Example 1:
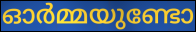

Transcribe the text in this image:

ഓർമ്മയുണ്ടോ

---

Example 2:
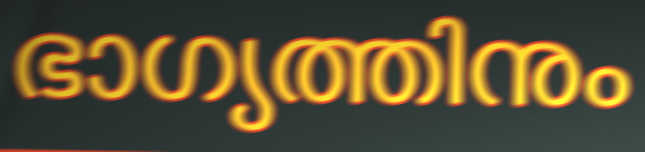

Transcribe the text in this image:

ഭാഗ്യത്തിനും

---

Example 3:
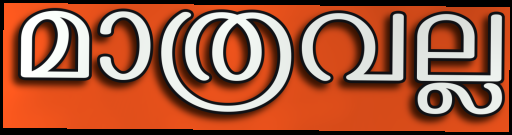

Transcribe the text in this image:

മാത്രവല്ല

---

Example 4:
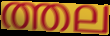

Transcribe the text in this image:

ത്തല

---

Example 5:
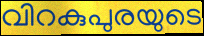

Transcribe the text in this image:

വിറകുപുരയുടെ